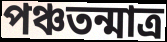
পঞ্চতন্মাত্র